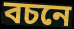
বচনে